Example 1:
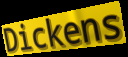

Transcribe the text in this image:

Dickens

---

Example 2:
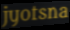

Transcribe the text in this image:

jyotsna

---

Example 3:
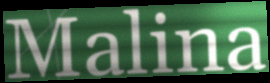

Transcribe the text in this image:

Malina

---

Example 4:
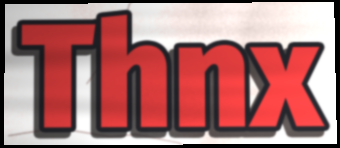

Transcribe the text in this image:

Thnx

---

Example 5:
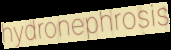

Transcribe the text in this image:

hydronephrosis